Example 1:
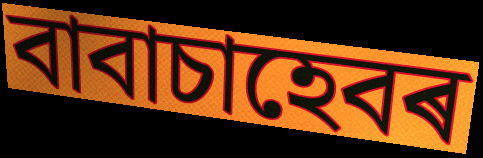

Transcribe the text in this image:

বাবাচাহেবৰ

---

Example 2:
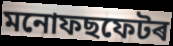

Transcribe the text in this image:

মনোফছফেটৰ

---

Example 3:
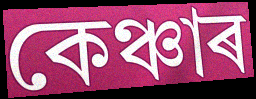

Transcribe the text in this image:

কেঞ্চাৰ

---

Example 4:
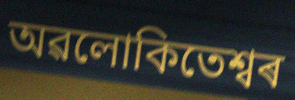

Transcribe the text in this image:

অৱলোকিতেশ্বৰ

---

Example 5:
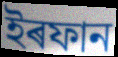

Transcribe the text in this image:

ইৰফান